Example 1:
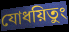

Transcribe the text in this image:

যোধয়িতুং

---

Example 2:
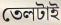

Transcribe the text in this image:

তেলটাই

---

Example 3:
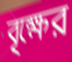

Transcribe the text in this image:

বৃক্ষের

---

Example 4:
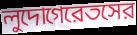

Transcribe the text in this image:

লুদোগেরেতসের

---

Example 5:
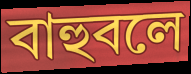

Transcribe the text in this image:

বাহুবলে